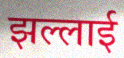
झल्लाई